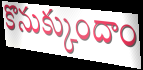
కొనుక్కుందాం